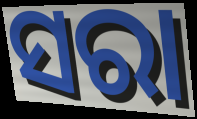
ସରା